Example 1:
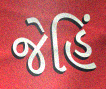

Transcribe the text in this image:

જેહિં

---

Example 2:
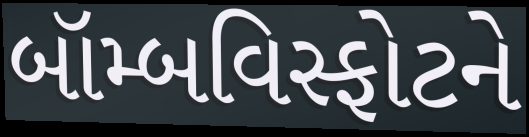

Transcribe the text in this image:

બૉમ્બવિસ્ફોટને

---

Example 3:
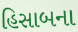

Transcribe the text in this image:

હિસાબના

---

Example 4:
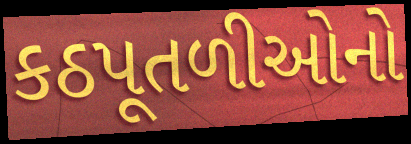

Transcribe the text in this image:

કઠપૂતળીઓનો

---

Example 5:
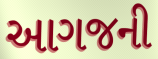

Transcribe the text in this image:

આગજની